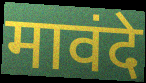
मावंदे